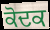
ਕੋਦਕ